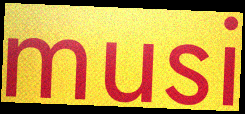
musi